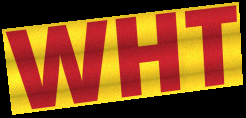
WHT